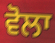
ਵੋਲਾ